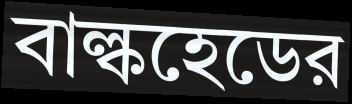
বাল্কহেডের